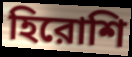
হিরোশি